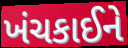
ખંચકાઈને